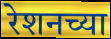
रेशनच्या